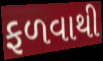
ફળવાથી